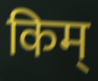
किम्